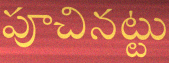
పూచినట్టు